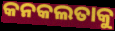
କନକଲତାକୁ